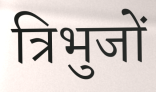
त्रिभुजों